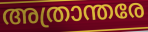
അത്രാന്തരേ